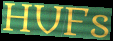
HUFs